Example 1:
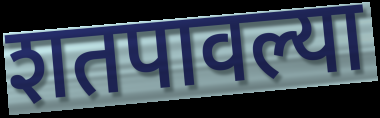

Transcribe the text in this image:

शतपावल्या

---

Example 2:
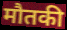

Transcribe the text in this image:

मौतकी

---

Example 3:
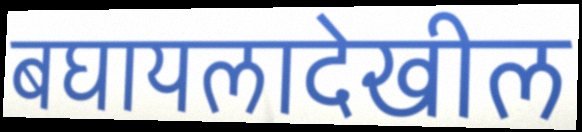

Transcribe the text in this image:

बघायलादेखील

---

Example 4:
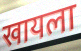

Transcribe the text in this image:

खायला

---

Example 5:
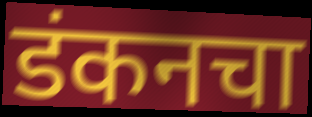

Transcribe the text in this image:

डंकनचा